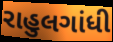
રાહુલગાંધી